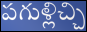
పగుళ్లిచ్చి